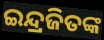
ଇନ୍ଦ୍ରଜିତଙ୍କ